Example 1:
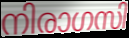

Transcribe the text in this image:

നിരാഗസി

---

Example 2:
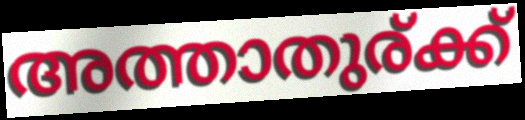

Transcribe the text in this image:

അത്താതുര്ക്ക്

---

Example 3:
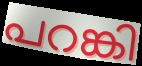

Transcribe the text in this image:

പറങ്കി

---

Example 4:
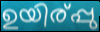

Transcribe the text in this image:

ഉയിര്പ്പു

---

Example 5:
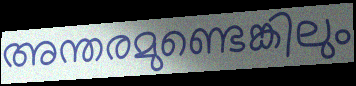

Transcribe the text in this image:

അന്തരമുണ്ടെങ്കിലും